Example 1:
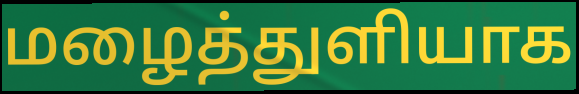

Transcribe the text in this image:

மழைத்துளியாக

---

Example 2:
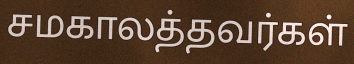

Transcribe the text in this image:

சமகாலத்தவர்கள்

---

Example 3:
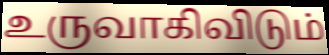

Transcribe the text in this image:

உருவாகிவிடும்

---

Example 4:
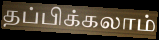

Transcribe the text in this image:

தப்பிக்கலாம்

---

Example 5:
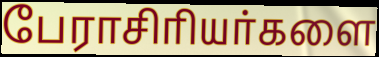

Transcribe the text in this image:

பேராசிரியர்களை